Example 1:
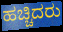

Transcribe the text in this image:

ಹಚ್ಚಿದರು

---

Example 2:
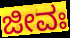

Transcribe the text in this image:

ಜೀವಃ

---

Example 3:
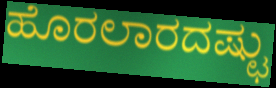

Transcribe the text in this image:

ಹೊರಲಾರದಷ್ಟು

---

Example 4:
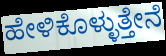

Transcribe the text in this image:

ಹೇಳಿಕೊಳ್ಳುತ್ತೇನೆ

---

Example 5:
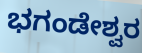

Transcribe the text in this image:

ಭಗಂಡೇಶ್ವರ